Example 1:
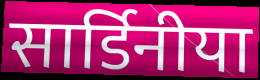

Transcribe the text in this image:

सार्डिनीया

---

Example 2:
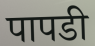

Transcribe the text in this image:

पापडी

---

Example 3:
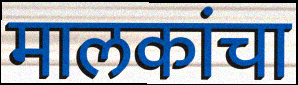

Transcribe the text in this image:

मालकांचा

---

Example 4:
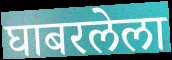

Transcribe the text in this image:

घाबरलेला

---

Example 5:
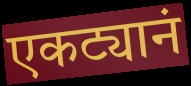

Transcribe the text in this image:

एकट्यानं